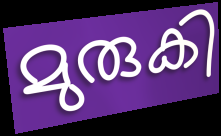
മുരുകി